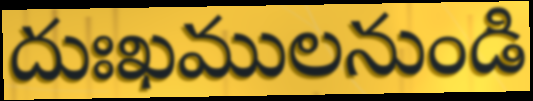
దుఃఖములనుండి